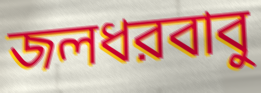
জলধরবাবু